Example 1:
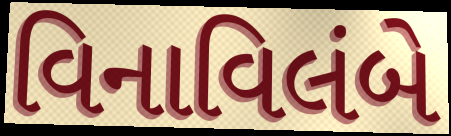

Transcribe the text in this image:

વિનાવિલંબે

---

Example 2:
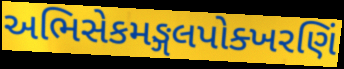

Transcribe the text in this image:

અભિસેકમઙ્ગલપોક્ખરણિં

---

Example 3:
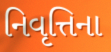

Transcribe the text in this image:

નિવૃત્તિના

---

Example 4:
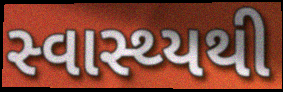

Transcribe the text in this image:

સ્વાસ્થ્યથી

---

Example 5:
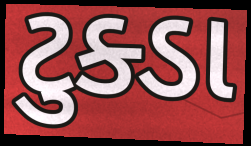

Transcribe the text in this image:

ટુક્ડા